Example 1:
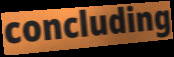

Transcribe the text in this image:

concluding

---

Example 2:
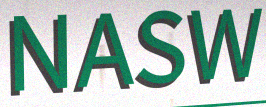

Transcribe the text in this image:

NASW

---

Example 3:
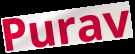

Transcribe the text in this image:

Purav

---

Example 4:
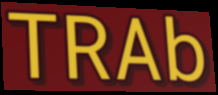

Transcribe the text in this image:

TRAb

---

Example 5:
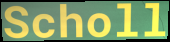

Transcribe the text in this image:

Scholl